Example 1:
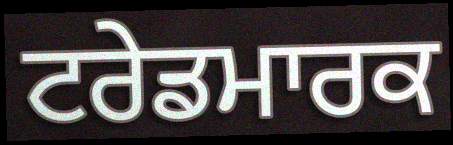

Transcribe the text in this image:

ਟਰੇਡਮਾਰਕ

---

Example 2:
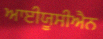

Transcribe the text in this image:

ਆਈਯੂਸੀਐਨ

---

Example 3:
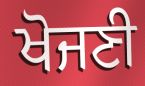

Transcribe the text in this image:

ਖੋਜਣੀ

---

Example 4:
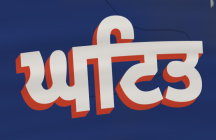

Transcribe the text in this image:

ਘਟਿਤ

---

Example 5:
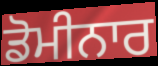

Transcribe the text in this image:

ਡੋਮੀਨਾਰ